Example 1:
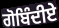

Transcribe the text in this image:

ਗੋਬਿੰਦੀਏ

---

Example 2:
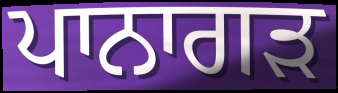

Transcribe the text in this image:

ਪਾਨਾਗੜ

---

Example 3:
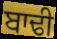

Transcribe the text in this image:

ਬਾਢੀ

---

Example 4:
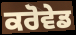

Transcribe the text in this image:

ਕਰੋਵੇਡ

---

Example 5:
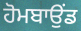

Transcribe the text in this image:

ਹੋਮਬਾਉਂਡ